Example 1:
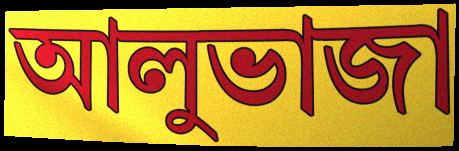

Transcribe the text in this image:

আলুভাজা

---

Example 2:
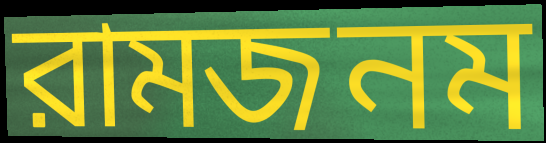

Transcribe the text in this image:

রামজনম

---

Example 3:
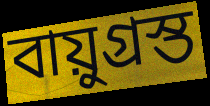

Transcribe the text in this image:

বায়ুগ্রস্ত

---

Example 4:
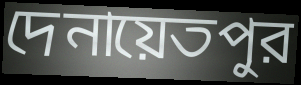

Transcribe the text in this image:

দেনায়েতপুর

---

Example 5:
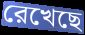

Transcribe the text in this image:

রেখেছে